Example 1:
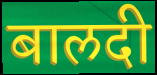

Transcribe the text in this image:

बालदी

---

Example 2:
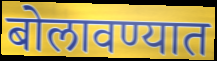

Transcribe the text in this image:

बोलावण्यात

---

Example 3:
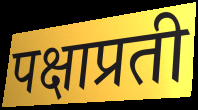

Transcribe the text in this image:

पक्षाप्रती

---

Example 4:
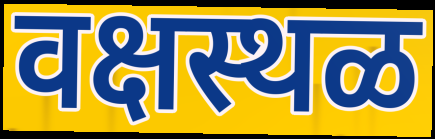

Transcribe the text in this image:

वक्षस्थळ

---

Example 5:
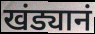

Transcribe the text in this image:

खंड्यानं